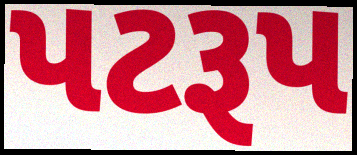
પટરૂપ